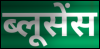
ब्लूसेंस